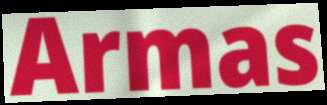
Armas